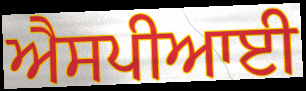
ਐਸਪੀਆਈ